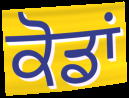
ਕੋਡਾਂ